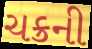
ચક્રની